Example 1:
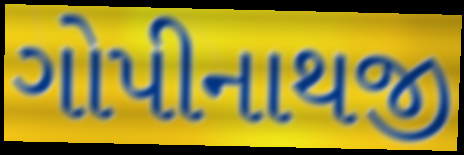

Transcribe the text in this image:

ગોપીનાથજી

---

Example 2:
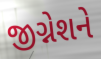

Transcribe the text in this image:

જીગ્નેશને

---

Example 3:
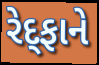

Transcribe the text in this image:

રેદ્ફાને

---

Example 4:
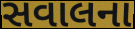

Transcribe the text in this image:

સવાલના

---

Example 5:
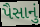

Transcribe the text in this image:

પૈસાનું